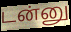
டன்னு